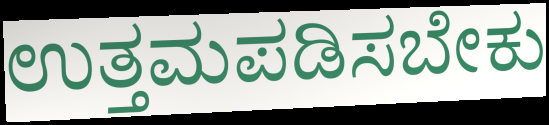
ಉತ್ತಮಪಡಿಸಬೇಕು